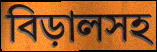
বিড়ালসহ